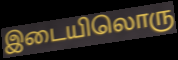
இடையிலொரு